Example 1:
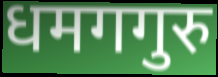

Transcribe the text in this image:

धमगगुरु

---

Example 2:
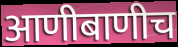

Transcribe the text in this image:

आणीबाणीच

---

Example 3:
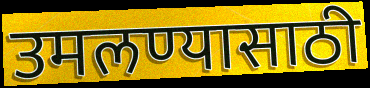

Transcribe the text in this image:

उमलण्यासाठी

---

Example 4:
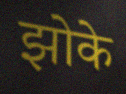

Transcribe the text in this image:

झोके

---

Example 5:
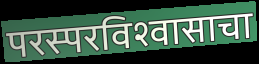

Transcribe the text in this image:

परस्परविश्वासाचा